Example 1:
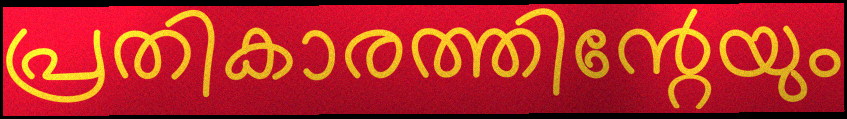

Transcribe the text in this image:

പ്രതികാരത്തിന്റേയും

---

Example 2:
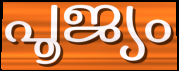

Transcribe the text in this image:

പൂജ്യം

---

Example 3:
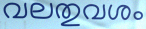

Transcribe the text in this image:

വലതുവശം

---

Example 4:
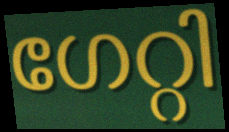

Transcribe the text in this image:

ഗേറ്റി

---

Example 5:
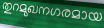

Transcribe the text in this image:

തുറമുഖനഗരമായ